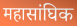
महासांघिक